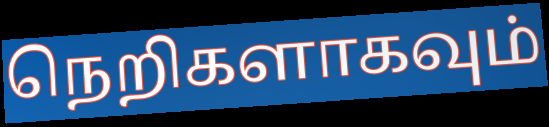
நெறிகளாகவும்